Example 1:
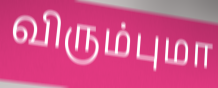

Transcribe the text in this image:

விரும்புமா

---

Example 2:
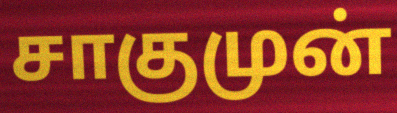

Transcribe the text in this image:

சாகுமுன்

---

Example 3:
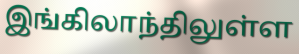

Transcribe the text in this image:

இங்கிலாந்திலுள்ள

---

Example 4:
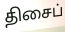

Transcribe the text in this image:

திசைப்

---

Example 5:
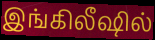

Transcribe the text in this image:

இங்கிலீஷில்